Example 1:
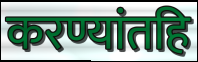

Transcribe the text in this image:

करण्यांतहि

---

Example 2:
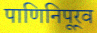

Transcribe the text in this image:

पाणिनिपूर्व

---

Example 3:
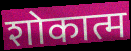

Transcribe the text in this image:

शोकात्म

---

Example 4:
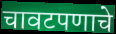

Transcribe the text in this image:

चावटपणाचे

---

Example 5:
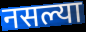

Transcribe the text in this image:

नसल्या